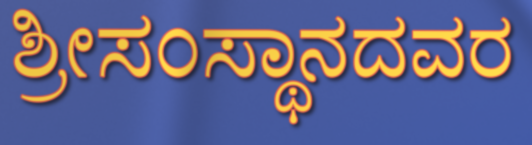
ಶ್ರೀಸಂಸ್ಥಾನದವರ